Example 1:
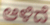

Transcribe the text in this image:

ಆಳಿದೆ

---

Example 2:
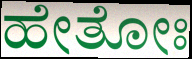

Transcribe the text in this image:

ಹೇತೋಃ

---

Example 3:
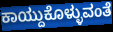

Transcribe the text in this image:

ಕಾಯ್ದುಕೊಳ್ಳುವಂತೆ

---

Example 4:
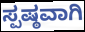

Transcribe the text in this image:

ಸ್ಪಷ್ಠವಾಗಿ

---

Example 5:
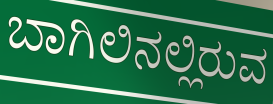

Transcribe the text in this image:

ಬಾಗಿಲಿನಲ್ಲಿರುವ